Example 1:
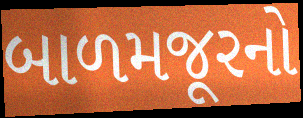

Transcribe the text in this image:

બાળમજૂરનો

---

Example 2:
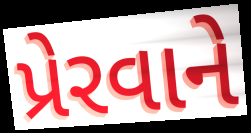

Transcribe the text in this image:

પ્રેરવાને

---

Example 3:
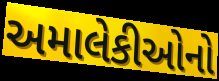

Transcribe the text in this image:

અમાલેકીઓનો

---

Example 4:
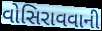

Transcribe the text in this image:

વોસિરાવવાની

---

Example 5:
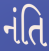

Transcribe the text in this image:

નંતિ